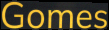
Gomes